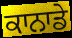
ਕਾਨਾਡੇ